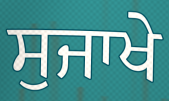
ਸੁਜਾਖੇ